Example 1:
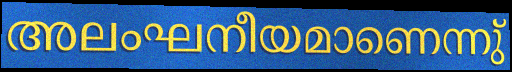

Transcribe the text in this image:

അലംഘനീയമാണെന്നു്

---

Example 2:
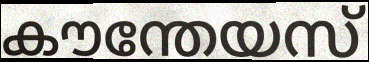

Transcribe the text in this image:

കൗന്തേയസ്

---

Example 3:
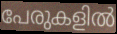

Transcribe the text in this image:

പേരുകളിൽ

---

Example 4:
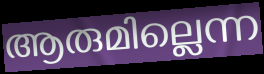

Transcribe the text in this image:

ആരുമില്ലെന്ന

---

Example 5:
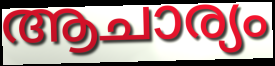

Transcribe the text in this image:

ആചാര്യം